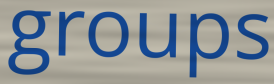
groups